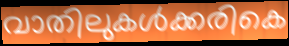
വാതിലുകൾക്കരികെ